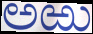
ಅಱು